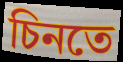
চিনতে